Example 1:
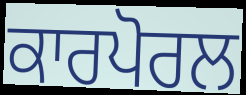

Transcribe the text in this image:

ਕਾਰਪੋਰਲ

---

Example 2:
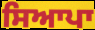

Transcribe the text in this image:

ਸਿਆਪਾ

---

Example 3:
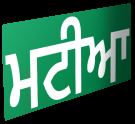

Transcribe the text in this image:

ਮਟੀਆ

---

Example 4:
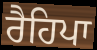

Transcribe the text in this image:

ਰੈਹਿਪਾ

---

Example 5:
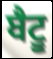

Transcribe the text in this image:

ਬੈਟੂ